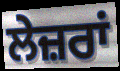
ਲੇਜ਼ਰਾਂ